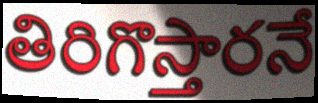
తిరిగొస్తారనే